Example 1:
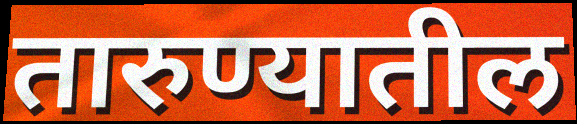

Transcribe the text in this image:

तारुण्यातील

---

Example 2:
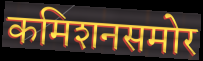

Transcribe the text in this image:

कमिशनसमोर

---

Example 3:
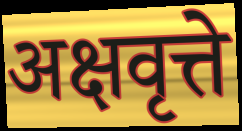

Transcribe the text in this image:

अक्षवृत्ते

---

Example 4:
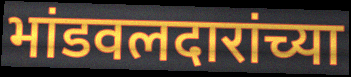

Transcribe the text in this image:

भांडवलदारांच्या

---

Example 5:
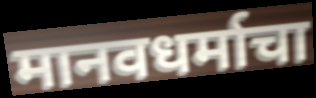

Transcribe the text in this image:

मानवधर्माचा